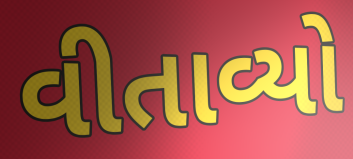
વીતાવ્યો